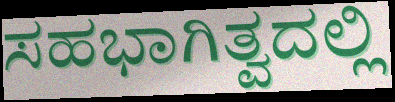
ಸಹಭಾಗಿತ್ವದಲ್ಲಿ